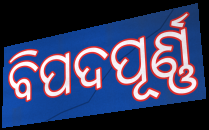
ବିପଦପୂର୍ଣ୍ଣ